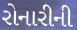
રોનારીની